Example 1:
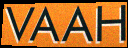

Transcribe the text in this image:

VAAH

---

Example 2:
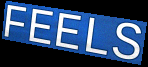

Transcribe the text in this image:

FEELS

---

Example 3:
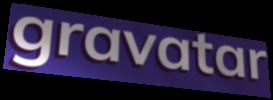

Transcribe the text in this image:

gravatar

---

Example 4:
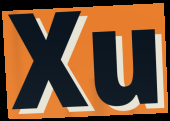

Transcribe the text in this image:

Xu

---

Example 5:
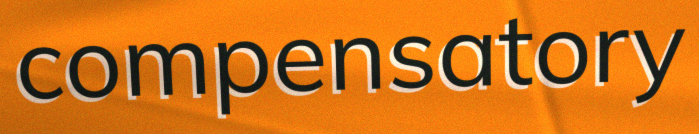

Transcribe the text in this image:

compensatory